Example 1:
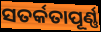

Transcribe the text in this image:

ସତର୍କତାପୂର୍ଣ୍ଣ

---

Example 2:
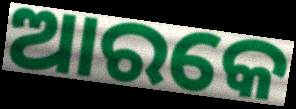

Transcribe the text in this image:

ଆରକେ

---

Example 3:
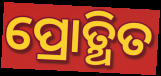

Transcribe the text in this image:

ପ୍ରୋତ୍ଥିତ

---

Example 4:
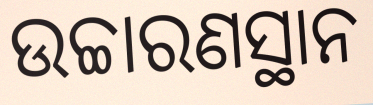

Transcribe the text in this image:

ଉଚ୍ଚାରଣସ୍ଥାନ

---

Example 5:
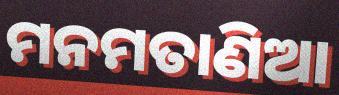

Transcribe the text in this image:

ମନମତାଣିଆ